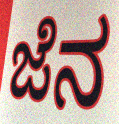
ಜೆನ